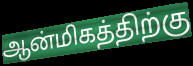
ஆன்மிகத்திற்கு